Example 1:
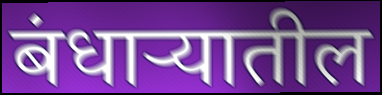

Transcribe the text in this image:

बंधाऱ्यातील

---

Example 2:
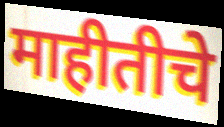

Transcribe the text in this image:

माहीतीचे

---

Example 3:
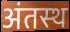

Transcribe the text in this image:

अंतस्थ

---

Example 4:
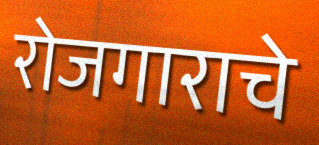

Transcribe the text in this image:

रोजगाराचे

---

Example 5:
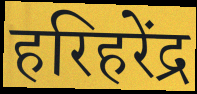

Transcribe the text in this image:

हरिहरेंद्र